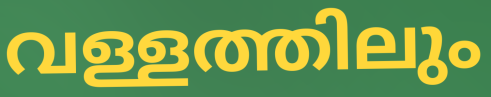
വള്ളത്തിലും